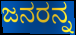
ಜನರನ್ನ